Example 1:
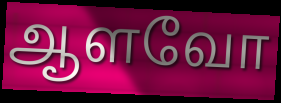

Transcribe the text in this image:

ஆளவோ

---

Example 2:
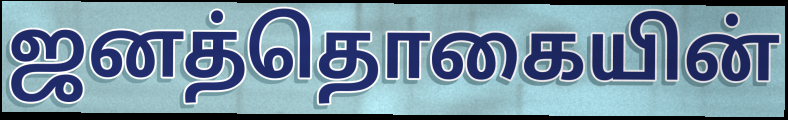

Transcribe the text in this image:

ஜனத்தொகையின்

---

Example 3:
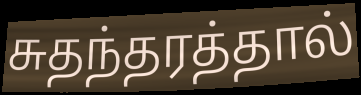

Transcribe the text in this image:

சுதந்தரத்தால்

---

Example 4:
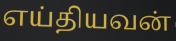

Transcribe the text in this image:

எய்தியவன்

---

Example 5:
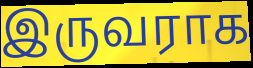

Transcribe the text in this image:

இருவராக